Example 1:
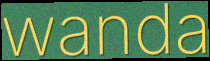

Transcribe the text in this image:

wanda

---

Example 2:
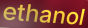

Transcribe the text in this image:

ethanol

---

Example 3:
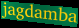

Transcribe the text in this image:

jagdamba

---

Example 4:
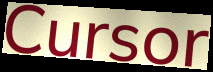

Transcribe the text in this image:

Cursor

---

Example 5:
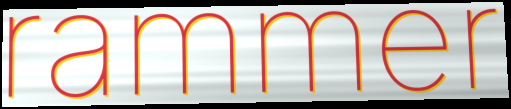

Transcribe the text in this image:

rammer